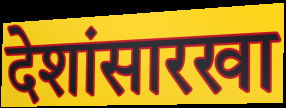
देशांसारखा